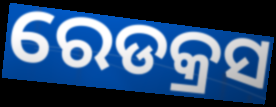
ରେଡକ୍ରସ